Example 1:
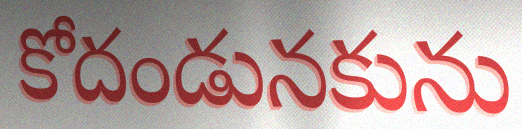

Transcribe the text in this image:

కోదండునకును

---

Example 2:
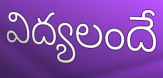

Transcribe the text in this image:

విద్యలందే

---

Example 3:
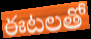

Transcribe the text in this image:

ఈటలతో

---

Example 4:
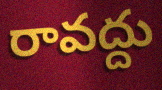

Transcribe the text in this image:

రావద్దు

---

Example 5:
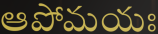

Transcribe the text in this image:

ఆపోమయః